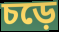
চড়ে